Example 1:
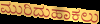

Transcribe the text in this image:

ಮುರಿದುಹಾಕಲು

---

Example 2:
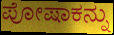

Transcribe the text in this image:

ಪೋಷಾಕನ್ನು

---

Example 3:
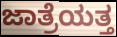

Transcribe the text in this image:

ಜಾತ್ರೆಯತ್ತ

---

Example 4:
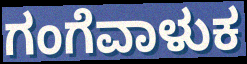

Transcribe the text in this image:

ಗಂಗೆವಾಳುಕ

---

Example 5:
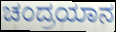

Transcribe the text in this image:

ಚಂದ್ರಯಾನ